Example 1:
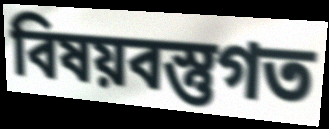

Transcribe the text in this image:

বিষয়বস্তুগত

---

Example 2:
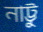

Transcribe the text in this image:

নাট্টু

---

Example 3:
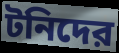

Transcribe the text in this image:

টনিদের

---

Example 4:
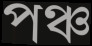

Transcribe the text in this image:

পঞ্চ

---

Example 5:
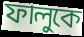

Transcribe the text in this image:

ফালুকে